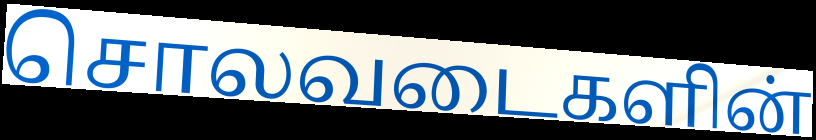
சொலவடைகளின்